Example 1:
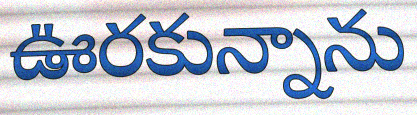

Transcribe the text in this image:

ఊరకున్నాను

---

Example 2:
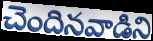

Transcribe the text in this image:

చెందినవాడిని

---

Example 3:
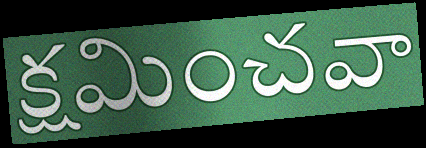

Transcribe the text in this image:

క్షమించవా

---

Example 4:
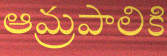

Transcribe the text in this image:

ఆమ్రపాలికి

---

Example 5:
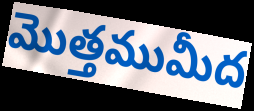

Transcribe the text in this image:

మొత్తముమీద